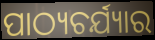
ପାଠ୍ୟଚର୍ଯ୍ୟାର